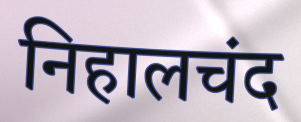
निहालचंद